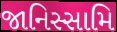
જાનિસ્સામિ